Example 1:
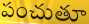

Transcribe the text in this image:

పంచుతూ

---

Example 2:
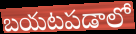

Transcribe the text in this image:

బయటపడాలో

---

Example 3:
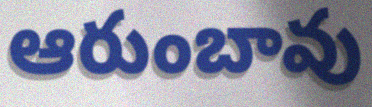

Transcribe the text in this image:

ఆరుంబావు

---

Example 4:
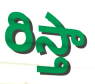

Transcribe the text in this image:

రిస్తా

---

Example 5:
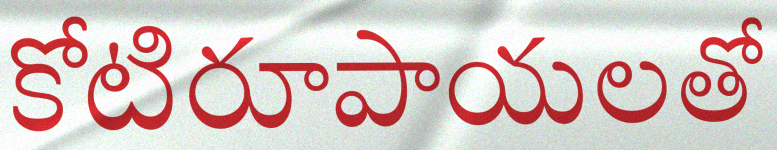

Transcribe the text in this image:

కోటిరూపాయలతో